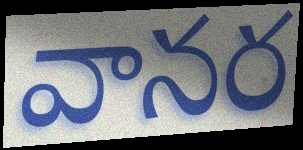
వానర